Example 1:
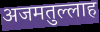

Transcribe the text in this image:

अजमतुल्लाह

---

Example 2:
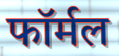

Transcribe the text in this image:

फॉर्मल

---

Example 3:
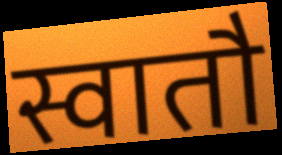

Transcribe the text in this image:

स्वातौ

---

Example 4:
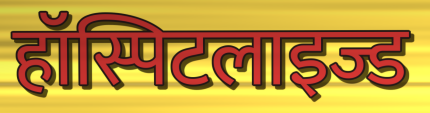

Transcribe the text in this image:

हॉस्पिटलाइज्ड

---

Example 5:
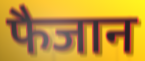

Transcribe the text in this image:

फैजान